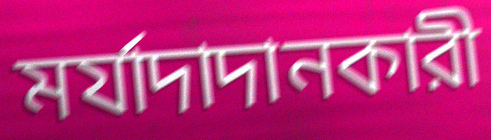
মর্যাদাদানকারী